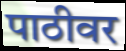
पाठीवर